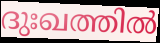
ദുഃഖത്തിൽ